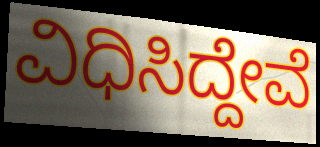
ವಿಧಿಸಿದ್ದೇವೆ